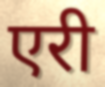
एरी